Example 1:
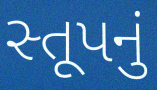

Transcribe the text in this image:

સ્તૂપનું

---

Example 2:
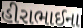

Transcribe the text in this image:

હીરાભાઈના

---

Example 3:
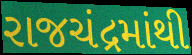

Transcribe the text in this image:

રાજચંદ્રમાંથી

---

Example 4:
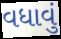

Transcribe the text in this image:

વધાવું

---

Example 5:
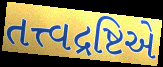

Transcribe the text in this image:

તત્ત્વદ્રષ્ટિએ